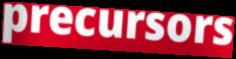
precursors